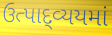
ઉત્પાદ્વ્યયમાં